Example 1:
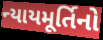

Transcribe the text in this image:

ન્યાયમૂર્તિનો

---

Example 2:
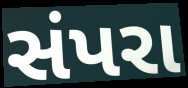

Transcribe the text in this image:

સંપરા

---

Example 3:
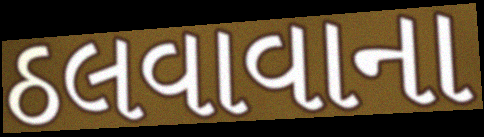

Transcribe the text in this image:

ઠલવાવાના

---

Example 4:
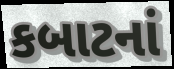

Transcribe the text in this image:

કબાટનાં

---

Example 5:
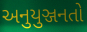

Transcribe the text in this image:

અનુયુઞ્જનતો